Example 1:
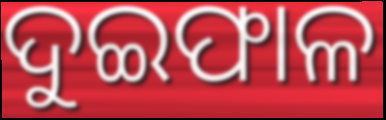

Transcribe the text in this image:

ଦୁଇଫାଳ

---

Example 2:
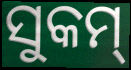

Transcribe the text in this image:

ସୁକମ୍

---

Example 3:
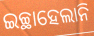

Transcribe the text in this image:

ଇଚ୍ଛାହେଲାନି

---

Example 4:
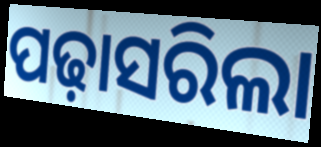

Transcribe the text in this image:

ପଢ଼ାସରିଲା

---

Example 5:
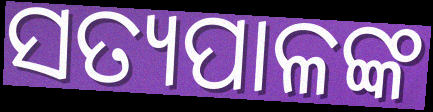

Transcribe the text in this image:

ସତ୍ୟପାଳଙ୍କ